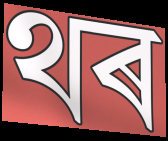
থৰ